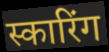
स्कारिंग